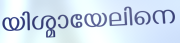
യിശ്മായേലിനെ